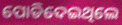
ପୋଡିଦେଇଥିଲେ